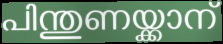
പിന്തുണയ്ക്കാന്